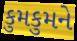
કુમકુમને